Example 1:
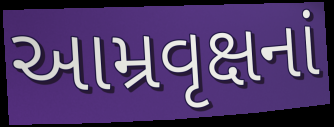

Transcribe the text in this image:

આમ્રવૃક્ષનાં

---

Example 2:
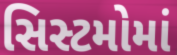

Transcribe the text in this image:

સિસ્ટમોમાં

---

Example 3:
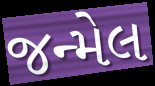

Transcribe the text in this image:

જન્મેલ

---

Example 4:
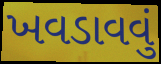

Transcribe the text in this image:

ખવડાવવું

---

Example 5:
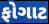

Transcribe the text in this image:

ફોગાટ